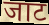
जाट